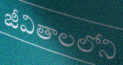
జీవితాలలోని